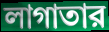
লাগাতার